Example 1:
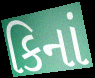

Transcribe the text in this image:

કિનાં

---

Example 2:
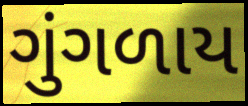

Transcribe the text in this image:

ગુંગળાય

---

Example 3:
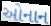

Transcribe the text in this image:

ઓનાન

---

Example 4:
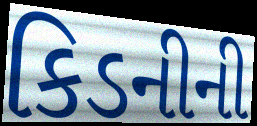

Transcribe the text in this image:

કિડનીની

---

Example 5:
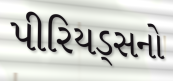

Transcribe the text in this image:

પીરિયડ્સનો